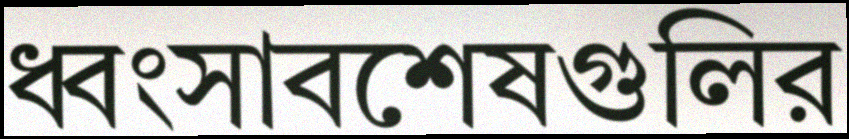
ধ্বংসাবশেষগুলির